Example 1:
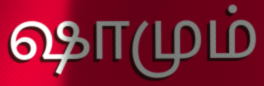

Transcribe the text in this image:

ஷாமும்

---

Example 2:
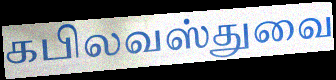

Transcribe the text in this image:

கபிலவஸ்துவை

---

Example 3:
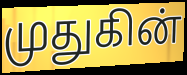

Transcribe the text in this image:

முதுகின்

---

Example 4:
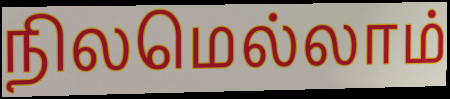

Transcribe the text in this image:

நிலமெல்லாம்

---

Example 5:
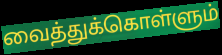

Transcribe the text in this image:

வைத்துக்கொள்ளும்